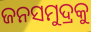
ଜନସମୁଦ୍ରକୁ